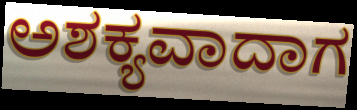
ಅಶಕ್ಯವಾದಾಗ